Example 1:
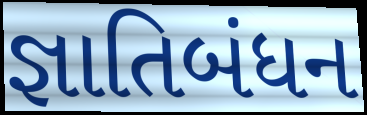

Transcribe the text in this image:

જ્ઞાતિબંધન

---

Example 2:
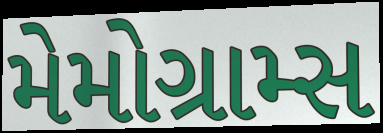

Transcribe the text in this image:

મેમોગ્રામ્સ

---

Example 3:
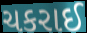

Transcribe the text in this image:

ચકરાઈ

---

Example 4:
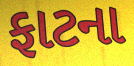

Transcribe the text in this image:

ફાટના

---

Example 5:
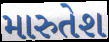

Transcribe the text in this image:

મારુતેશ